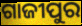
ଗାଜୀପୁର